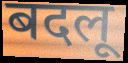
बदलू